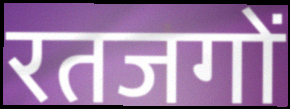
रतजगों